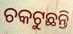
ଚକଟୁଛନ୍ତି